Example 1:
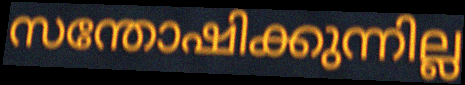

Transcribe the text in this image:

സന്തോഷിക്കുന്നില്ല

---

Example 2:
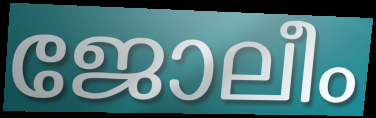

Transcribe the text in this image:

ജോലീം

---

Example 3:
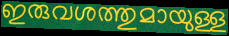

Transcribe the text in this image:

ഇരുവശത്തുമായുള്ള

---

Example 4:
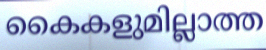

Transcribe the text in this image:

കൈകളുമില്ലാത്ത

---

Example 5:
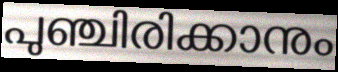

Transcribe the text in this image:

പുഞ്ചിരിക്കാനും